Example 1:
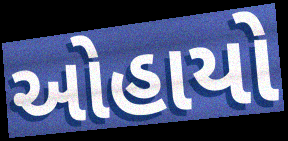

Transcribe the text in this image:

ઓહાયો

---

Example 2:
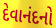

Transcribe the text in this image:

દેવાનંદનો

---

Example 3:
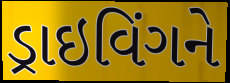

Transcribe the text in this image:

ડ્રાઇવિંગને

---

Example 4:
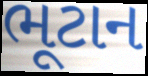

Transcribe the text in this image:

ભૂટાન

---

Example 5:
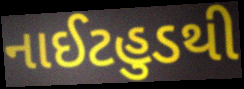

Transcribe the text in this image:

નાઈટહુડથી